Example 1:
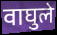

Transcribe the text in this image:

वाघुले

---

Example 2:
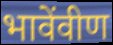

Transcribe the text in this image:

भावेंवीण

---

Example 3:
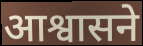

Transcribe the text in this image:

आश्वासने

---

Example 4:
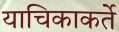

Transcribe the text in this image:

याचिकाकर्ते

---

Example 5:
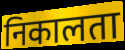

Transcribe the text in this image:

निकालता